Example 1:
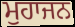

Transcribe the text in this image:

ਮੁਹਾਜਨ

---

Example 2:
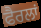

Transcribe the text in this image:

ਫੈਰਲਾਂ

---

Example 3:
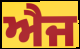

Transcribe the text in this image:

ਐਜ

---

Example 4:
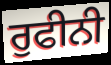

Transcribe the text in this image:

ਰੁਫੀਨੀ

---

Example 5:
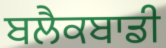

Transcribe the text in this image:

ਬਲੈਕਬਾਡੀ